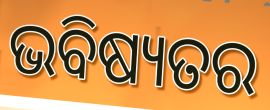
ଭବିଷ୍ୟତର